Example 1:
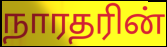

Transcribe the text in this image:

நாரதரின்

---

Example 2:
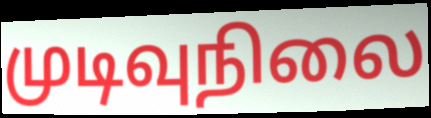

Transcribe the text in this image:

முடிவுநிலை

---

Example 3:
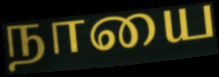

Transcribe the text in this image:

நாயை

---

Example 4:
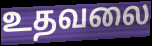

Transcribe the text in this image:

உதவலை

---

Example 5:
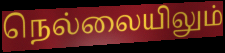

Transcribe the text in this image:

நெல்லையிலும்